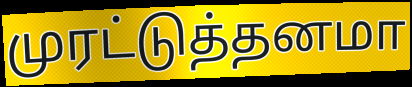
முரட்டுத்தனமா